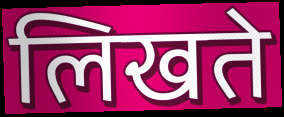
लिखते